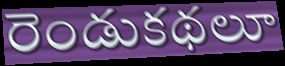
రెండుకథలూ